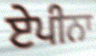
ਏਪੀਨਾ